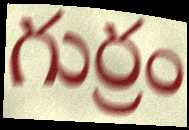
గుర్రం